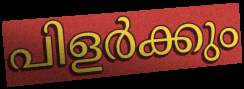
പിളർക്കും